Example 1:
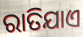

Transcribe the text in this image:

ରାତିଯାଏ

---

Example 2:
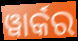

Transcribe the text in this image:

ୱାର୍କର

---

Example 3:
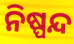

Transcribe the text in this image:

ନିଷ୍ପନ୍ଦ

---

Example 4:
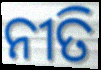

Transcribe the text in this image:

ନୀତି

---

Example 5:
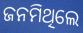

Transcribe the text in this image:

ଜନମିଥିଲେ